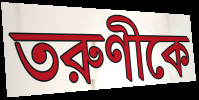
তরুণীকে